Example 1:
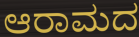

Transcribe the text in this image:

ಆರಾಮದ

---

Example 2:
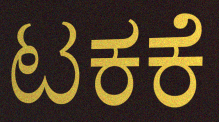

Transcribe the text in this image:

ಟಕಕೆ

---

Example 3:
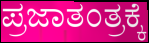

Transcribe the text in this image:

ಪ್ರಜಾತಂತ್ರಕ್ಕೆ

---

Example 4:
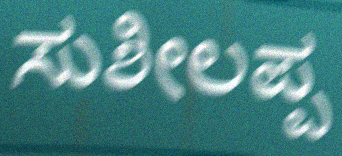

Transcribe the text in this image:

ಸುಶೀಲಪ್ಪ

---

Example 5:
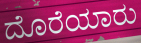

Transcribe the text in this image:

ದೊರೆಯಾರು